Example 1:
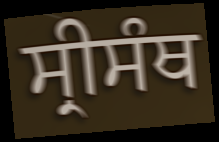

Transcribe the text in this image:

ਸ੍ਰੀਸੰਥ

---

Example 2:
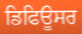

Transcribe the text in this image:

ਡਿਫਿਊਸਰ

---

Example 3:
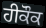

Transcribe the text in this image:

ਹੀਕੌਕ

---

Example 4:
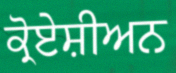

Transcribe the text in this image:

ਕ੍ਰੋਏਸ਼ੀਅਨ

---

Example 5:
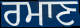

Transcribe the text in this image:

ਰਮਾਣ